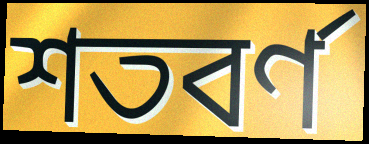
শতবর্ণ